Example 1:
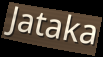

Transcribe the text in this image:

Jataka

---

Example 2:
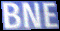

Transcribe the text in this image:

BNE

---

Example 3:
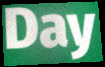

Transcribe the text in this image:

Day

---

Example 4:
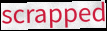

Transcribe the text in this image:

scrapped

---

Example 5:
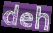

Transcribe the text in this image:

deh